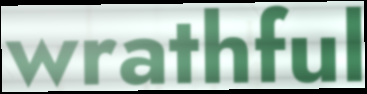
wrathful